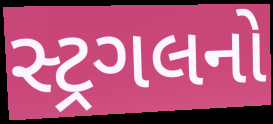
સ્ટ્રગલનો